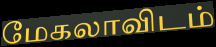
மேகலாவிடம்